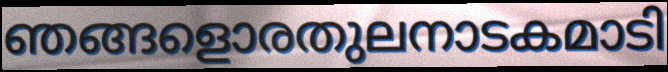
ഞങ്ങളൊരതുലനാടകമാടി